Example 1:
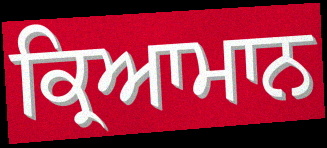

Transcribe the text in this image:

ਕ੍ਰਿਆਮਾਨ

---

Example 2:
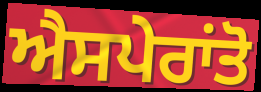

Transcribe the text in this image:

ਐਸਪੇਰਾਂਤੋ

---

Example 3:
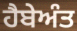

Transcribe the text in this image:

ਹੈਬੇਅੰਤ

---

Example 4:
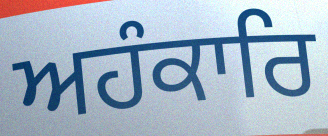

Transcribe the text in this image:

ਅਹੰਕਾਰਿ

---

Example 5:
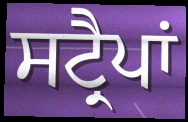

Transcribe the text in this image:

ਸਟ੍ਰੈਪਾਂ